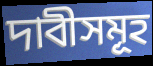
দাবীসমূহ